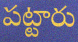
పట్టారు